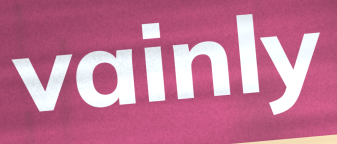
vainly